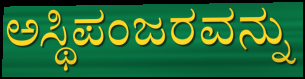
ಅಸ್ಥಿಪಂಜರವನ್ನು